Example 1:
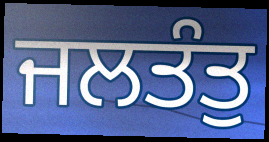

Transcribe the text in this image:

ਜਲਤੰਤੁ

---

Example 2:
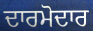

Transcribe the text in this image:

ਦਾਰਮੋਦਾਰ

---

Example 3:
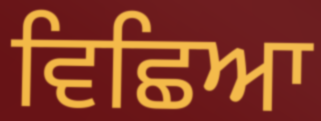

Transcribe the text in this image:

ਵਿਛਿਆ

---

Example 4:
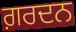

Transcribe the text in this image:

ਗ਼ਰਦਨ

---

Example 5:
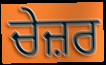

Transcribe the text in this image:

ਚੇਜ਼ਰ